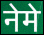
नेमे